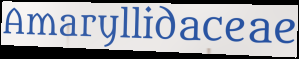
Amaryllidaceae